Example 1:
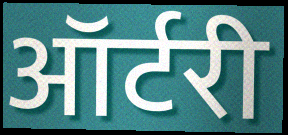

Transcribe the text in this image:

ऑर्टरी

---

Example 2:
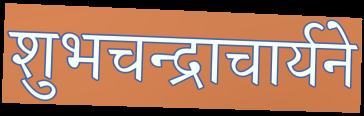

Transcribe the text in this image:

शुभचन्द्राचार्यने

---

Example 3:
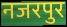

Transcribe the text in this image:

नजरपुर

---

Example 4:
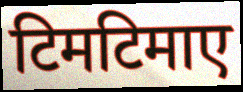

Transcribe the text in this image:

टिमटिमाए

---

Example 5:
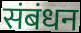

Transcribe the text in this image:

संबंधन